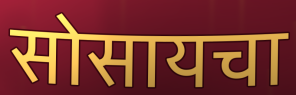
सोसायचा